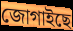
জোগাইছে